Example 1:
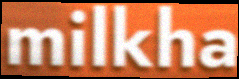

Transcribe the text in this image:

milkha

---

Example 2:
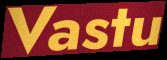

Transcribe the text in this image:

Vastu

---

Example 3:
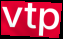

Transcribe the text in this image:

vtp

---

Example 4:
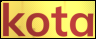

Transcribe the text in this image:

kota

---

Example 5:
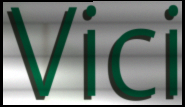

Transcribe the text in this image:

Vici